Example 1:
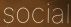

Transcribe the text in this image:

social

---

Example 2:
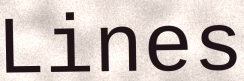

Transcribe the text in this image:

Lines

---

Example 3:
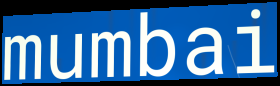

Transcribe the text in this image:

mumbai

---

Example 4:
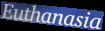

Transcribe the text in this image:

Euthanasia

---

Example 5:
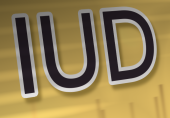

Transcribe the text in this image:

IUD